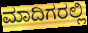
ಮಾದಿಗರಲ್ಲಿ